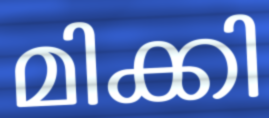
മിക്കി